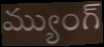
మ్యుంగ్